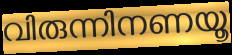
വിരുന്നിനണയൂ